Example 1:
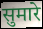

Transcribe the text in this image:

सुमारे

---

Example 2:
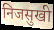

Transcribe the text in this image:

निजसुखी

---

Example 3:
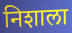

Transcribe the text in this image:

निशाला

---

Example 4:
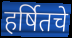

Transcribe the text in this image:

हर्षितचे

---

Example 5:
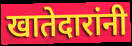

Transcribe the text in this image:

खातेदारांनी